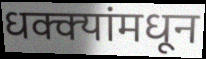
धक्क्यांमधून